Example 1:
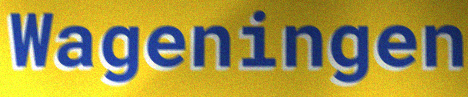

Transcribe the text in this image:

Wageningen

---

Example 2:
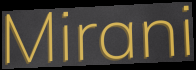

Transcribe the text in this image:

Mirani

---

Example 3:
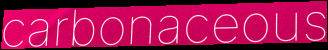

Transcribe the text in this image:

carbonaceous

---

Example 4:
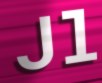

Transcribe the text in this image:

Jl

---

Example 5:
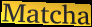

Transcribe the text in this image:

Matcha